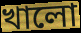
খালো